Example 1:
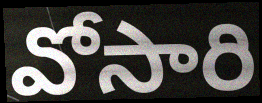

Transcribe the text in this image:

వోసారి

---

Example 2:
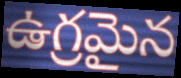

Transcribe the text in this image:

ఉగ్రమైన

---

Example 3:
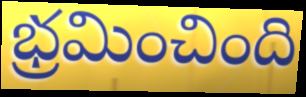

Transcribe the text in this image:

భ్రమించింది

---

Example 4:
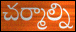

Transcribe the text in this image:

చర్మాల్ని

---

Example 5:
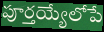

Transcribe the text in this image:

పూర్తయ్యేలోపే